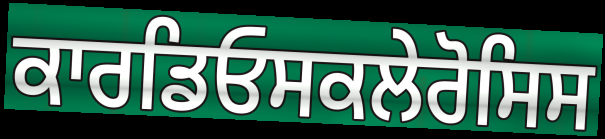
ਕਾਰਡਿਓਸਕਲੇਰੋਸਿਸ